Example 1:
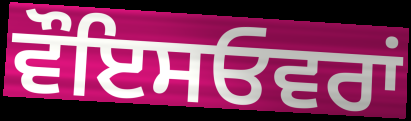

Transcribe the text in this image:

ਵੌਇਸਓਵਰਾਂ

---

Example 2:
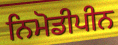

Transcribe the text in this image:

ਨਿਮੋਡੀਪੀਨ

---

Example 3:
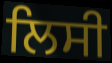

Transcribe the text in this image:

ਲਿਸੀ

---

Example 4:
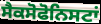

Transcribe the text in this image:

ਸੈਕਸੋਫੋਨਿਸਟਾਂ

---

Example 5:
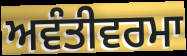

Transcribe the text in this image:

ਅਵੰਤੀਵਰਮਾ